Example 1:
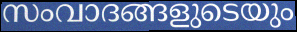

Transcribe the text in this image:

സംവാദങ്ങളുടെയും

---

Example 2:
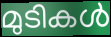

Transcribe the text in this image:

മുടികൾ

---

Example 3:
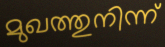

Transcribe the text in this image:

മുഖത്തുനിന്ന്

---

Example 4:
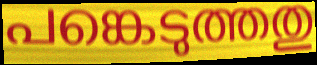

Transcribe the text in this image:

പങ്കെടുത്തതു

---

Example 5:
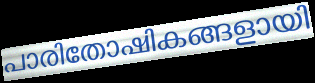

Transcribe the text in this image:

പാരിതോഷികങ്ങളായി